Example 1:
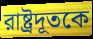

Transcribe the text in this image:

রাষ্ট্রদূতকে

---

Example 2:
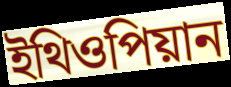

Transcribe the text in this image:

ইথিওপিয়ান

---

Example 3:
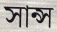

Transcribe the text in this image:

সান্স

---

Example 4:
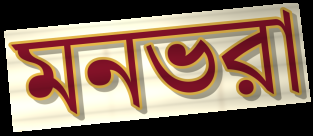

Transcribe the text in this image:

মনভরা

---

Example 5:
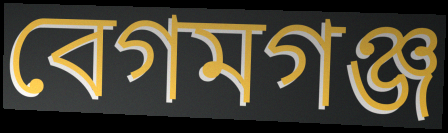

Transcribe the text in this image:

বেগমগঞ্জ